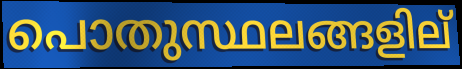
പൊതുസ്ഥലങ്ങളില്